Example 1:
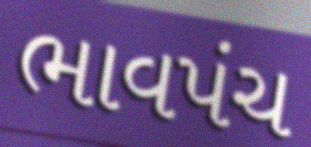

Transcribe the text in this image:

ભાવપંચ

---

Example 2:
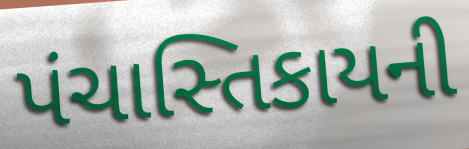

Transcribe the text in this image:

પંચાસ્તિકાયની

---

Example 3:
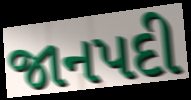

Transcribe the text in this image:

જાનપદી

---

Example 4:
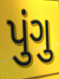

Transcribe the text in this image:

પુંગુ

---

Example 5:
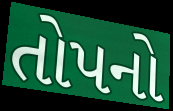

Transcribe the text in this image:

તોપનો